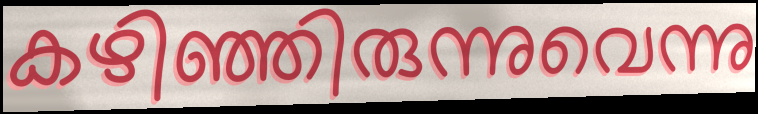
കഴിഞ്ഞിരുന്നുവെന്നു